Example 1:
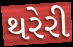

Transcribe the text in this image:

થરેરી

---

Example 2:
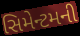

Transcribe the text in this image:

સિમેન્ટમની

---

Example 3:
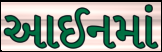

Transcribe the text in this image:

આઈનમાં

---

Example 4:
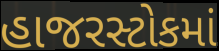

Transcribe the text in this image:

હાજરસ્ટોકમાં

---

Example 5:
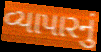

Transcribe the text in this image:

વ્યાપારનું